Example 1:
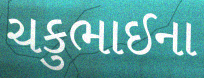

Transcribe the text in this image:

ચકુભાઈના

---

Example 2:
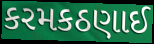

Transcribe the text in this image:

કરમકઠણાઈ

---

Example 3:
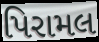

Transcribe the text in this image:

પિરામલ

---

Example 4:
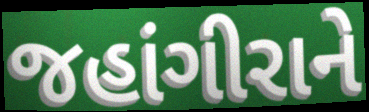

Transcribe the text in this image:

જહાંગીરાને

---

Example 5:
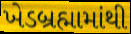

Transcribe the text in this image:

ખેડબ્રહ્મામાંથી